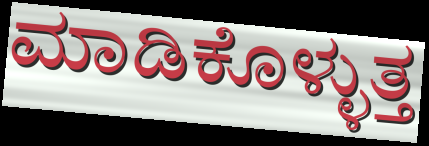
ಮಾಡಿಕೊಳ್ಳುತ್ತ